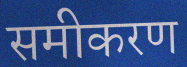
समीकरण